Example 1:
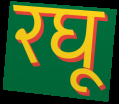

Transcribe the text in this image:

रघू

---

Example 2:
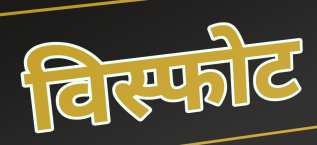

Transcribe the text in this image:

विस्फोट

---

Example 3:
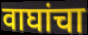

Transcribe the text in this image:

वाघांचा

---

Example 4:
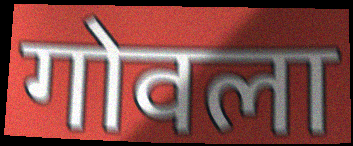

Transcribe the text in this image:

गोवला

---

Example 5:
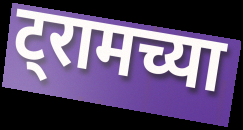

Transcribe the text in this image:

ट्रामच्या